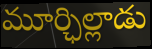
మూర్ఛిల్లాడు